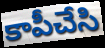
కాపీచేసి